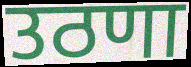
उठणा